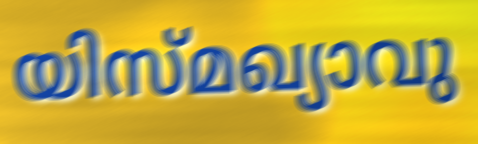
യിസ്മഖ്യാവു